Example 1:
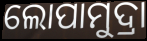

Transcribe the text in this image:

ଲୋପାମୁଦ୍ରା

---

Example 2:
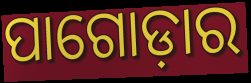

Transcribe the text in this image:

ପାଗୋଡ଼ାର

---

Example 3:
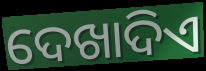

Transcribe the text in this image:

ଦେଖାଦିଏ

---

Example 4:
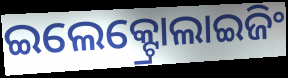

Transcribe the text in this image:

ଇଲେକ୍ଟ୍ରୋଲାଇଜିଂ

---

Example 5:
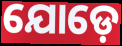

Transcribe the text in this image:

ଯୋଡ଼େ